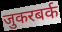
जुकरबर्क